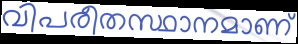
വിപരീതസ്ഥാനമാണ്